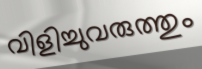
വിളിച്ചുവരുത്തും